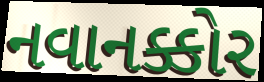
નવાનક્કોર